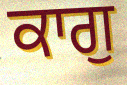
ਕਾਗੁ